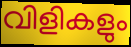
വിളികളും